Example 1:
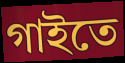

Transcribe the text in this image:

গাইতে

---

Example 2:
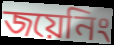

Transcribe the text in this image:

জয়েনিং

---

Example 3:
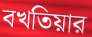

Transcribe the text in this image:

বখতিয়ার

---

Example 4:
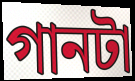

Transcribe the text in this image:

গানটা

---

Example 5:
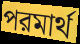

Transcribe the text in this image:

পরমার্থ